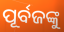
ପୂର୍ବଜଙ୍କୁ